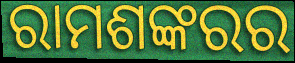
ରାମଶଙ୍କରର